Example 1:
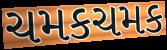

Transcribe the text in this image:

ચમકચમક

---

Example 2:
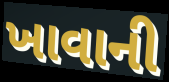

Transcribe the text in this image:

ખાવાની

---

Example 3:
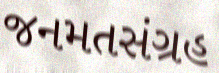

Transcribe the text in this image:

જનમતસંગ્રહ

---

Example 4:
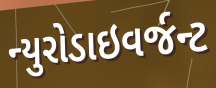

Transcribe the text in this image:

ન્યુરોડાઇવર્જન્ટ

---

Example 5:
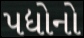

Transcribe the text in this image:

પદ્યોનો